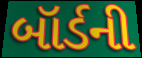
બૉર્ડની